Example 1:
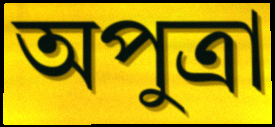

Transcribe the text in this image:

অপুত্রা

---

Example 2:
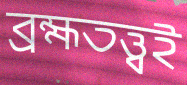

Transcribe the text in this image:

ব্রহ্মতত্ত্বই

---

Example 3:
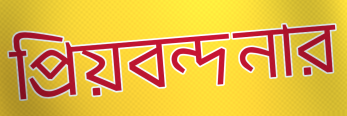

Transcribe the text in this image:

প্রিয়বন্দনার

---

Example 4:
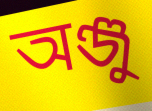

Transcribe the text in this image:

অঞ্জু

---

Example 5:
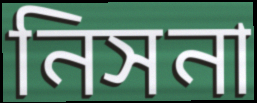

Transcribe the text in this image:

নিসনা